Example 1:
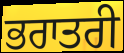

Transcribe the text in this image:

ਭਰਾਤਰੀ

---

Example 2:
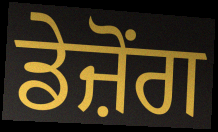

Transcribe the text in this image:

ਡੇਜ਼ੋਂਗ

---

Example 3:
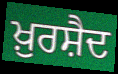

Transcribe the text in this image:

ਖ਼ੁਰਸ਼ੈਦ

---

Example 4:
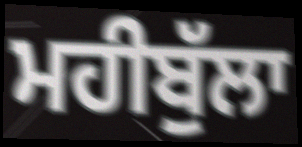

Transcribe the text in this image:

ਮਹੀਬੁੱਲਾ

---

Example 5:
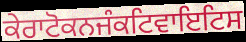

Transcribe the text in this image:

ਕੇਰਾਟੋਕਨਜੰਕਟਿਵਾਇਟਿਸ